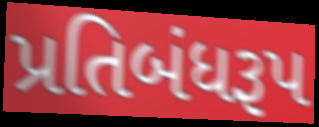
પ્રતિબંધરૂપ